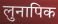
लुनापिक